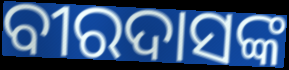
ବୀରଦାସଙ୍କ